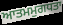
ਆਤਮਮੁਗਧਤਾ